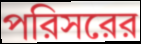
পরিসরের